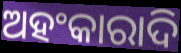
ଅହଂକାରାଦି